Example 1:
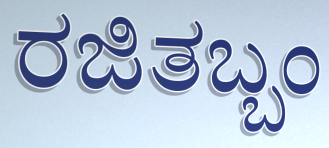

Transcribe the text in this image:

ರಜಿತಬ್ಬಂ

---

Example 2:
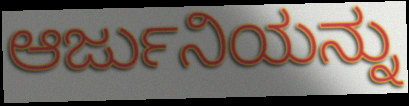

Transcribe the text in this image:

ಆರ್ಜುನಿಯನ್ನು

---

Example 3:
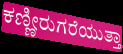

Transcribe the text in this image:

ಕಣ್ಣೀರುಗರೆಯುತ್ತಾ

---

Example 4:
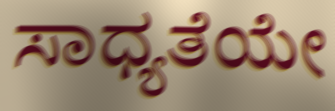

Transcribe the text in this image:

ಸಾಧ್ಯತೆಯೇ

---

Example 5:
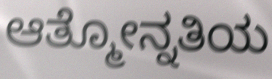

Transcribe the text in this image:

ಆತ್ಮೋನ್ನತಿಯ